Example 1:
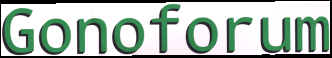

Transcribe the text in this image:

Gonoforum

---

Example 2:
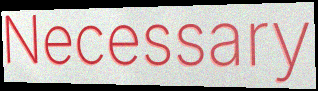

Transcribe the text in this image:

Necessary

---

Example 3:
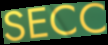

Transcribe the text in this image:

SECC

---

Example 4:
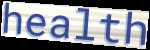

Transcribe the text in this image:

health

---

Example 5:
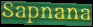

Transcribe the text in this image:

Sapnana